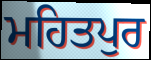
ਮਹਿਤਪੁਰ